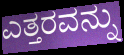
ಎತ್ತರವನ್ನು